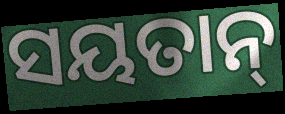
ସୟତାନ୍